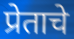
प्रेताचे